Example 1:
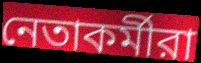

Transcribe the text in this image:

নেতাকর্মীরা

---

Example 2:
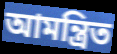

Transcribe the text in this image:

আমন্ত্রিত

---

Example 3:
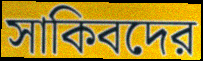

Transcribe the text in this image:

সাকিবদের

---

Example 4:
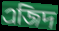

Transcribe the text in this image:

এজিদ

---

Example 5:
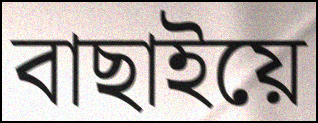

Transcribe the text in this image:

বাছাইয়ে